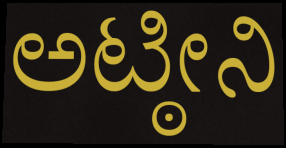
ಅಟ್ಠೀನಿ